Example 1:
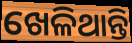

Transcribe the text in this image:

ଖେଳିଥାନ୍ତି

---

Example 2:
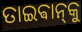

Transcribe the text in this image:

ତାଇଵାନ୍‌କୁ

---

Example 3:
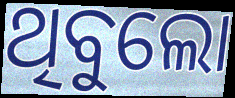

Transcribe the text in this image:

ଥିବୁଲୋ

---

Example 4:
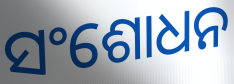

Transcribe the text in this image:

ସଂଶୋଧନ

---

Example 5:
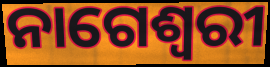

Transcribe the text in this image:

ନାଗେଶ୍ୱରୀ